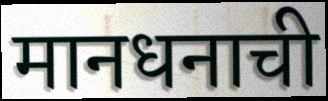
मानधनाची